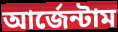
আর্জেন্টাম